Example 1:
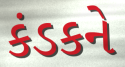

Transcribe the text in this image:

કંડકને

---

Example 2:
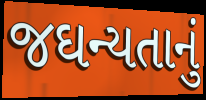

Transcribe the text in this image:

જઘન્યતાનું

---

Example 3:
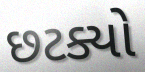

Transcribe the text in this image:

છટક્યો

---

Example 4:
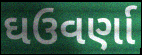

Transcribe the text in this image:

ઘઉવર્ણા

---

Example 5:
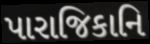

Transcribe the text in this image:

પારાજિકાનિ